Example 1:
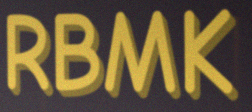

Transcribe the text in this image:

RBMK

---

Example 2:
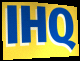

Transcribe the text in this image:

IHQ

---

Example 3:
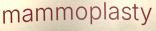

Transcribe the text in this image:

mammoplasty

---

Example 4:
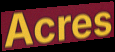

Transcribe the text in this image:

Acres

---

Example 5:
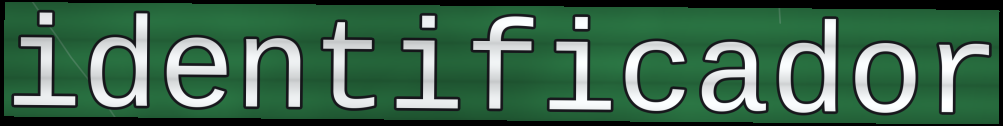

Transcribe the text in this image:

identificador